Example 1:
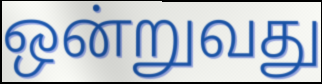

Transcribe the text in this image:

ஒன்றுவது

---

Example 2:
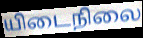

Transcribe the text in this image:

யிடைநிலை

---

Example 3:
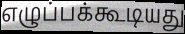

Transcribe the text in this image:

எழுப்பக்கூடியது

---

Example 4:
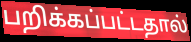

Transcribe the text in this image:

பறிக்கப்பட்டதால்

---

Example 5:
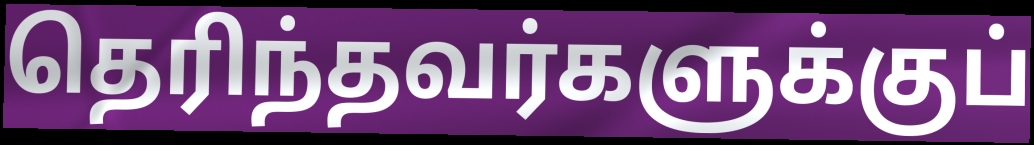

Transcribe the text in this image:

தெரிந்தவர்களுக்குப்